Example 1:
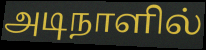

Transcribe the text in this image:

அடிநாளில்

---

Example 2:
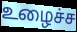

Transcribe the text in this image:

உழைச்ச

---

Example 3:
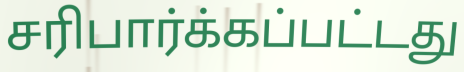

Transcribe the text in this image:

சரிபார்க்கப்பட்டது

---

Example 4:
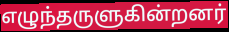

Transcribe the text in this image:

எழுந்தருளுகின்றனர்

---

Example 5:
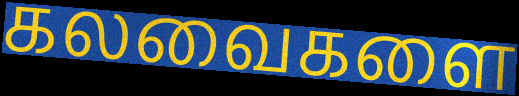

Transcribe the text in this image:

கலவைகளை